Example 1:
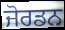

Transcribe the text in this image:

ਜੋਰਡਨ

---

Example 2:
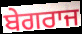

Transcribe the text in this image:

ਬੇਗਰਾਜ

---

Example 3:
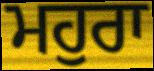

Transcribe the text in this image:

ਮਹੁਰਾ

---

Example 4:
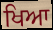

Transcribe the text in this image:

ਖਿਆ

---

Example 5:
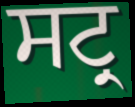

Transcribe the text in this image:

ਸਟ੍ਰ